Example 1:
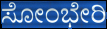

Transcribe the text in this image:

ಸೋಂಭೇರಿ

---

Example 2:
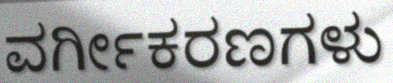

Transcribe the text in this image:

ವರ್ಗೀಕರಣಗಳು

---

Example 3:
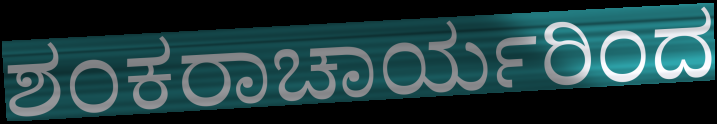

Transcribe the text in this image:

ಶಂಕರಾಚಾರ್ಯರಿಂದ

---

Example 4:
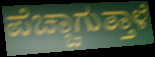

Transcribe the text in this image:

ಪೆಚ್ಚಾಗುತ್ತಾಳೆ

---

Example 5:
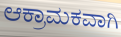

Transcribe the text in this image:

ಆಕ್ರಾಮಕವಾಗಿ